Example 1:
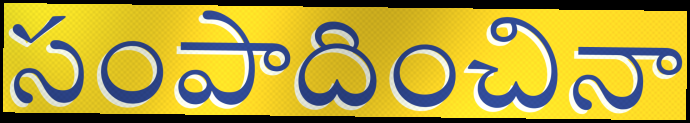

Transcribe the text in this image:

సంపాదించినా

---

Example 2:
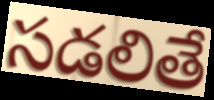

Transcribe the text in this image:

సడలితే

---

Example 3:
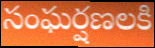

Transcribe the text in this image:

సంఘర్షణలకి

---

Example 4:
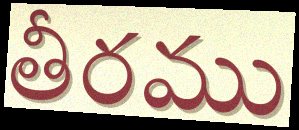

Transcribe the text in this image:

తీరము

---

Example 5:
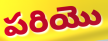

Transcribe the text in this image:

పరియొ